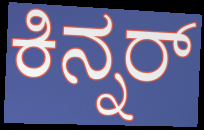
ಕಿನ್ನರ್